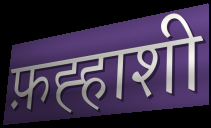
फ़ह्हाशी